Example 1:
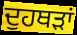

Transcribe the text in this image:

ਦੁਹਥੜਾਂ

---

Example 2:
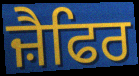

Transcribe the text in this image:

ਜ਼ੈਫਿਰ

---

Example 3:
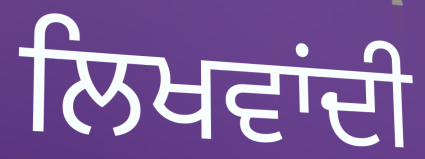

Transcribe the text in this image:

ਲਿਖਵਾਂਦੀ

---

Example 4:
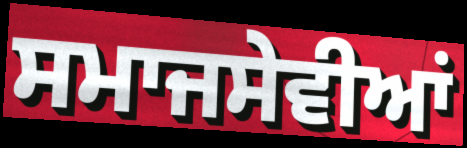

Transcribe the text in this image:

ਸਮਾਜਸੇਵੀਆਂ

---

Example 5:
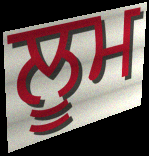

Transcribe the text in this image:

ਲੂਮ